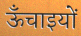
ऊँचाइयों